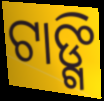
ଟାଙ୍ଗି